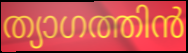
ത്യാഗത്തിൻ